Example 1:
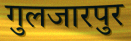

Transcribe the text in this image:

गुलजारपुर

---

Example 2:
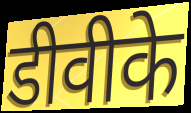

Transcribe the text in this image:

डीवीके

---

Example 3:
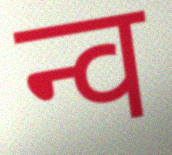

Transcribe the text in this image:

न्व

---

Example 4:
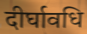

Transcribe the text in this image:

दीर्घावधि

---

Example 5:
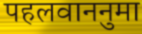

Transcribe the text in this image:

पहलवाननुमा